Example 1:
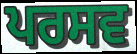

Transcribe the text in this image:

ਪਰਸਵ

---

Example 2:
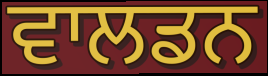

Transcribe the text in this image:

ਵਾਲਡਨ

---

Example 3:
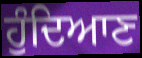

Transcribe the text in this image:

ਹੁੰਦਿਆਣ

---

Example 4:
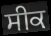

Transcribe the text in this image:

ਸੀਕ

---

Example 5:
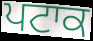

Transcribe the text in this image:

ਪਟਾਕ